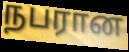
நபரான